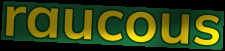
raucous